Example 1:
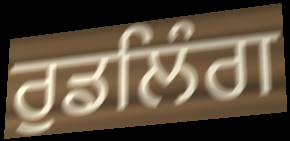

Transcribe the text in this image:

ਰੁਡਲਿੰਗ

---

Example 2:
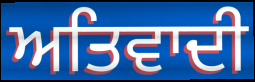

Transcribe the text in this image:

ਅਤਿਵਾਦੀ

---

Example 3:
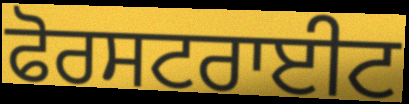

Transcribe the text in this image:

ਫੋਰਸਟਰਾਈਟ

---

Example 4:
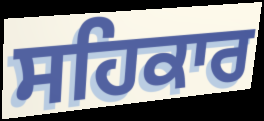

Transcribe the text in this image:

ਸਹਿਕਾਰ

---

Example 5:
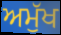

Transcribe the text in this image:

ਅਮੁੱਖ